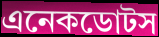
এনেকডোটস